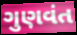
ગુણવંત